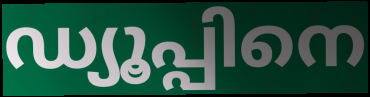
ഡ്യൂപ്പിനെ